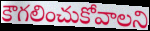
కౌగలించుకోవాలని